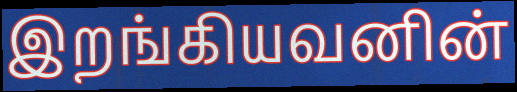
இறங்கியவனின்